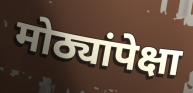
मोठ्यांपेक्षा